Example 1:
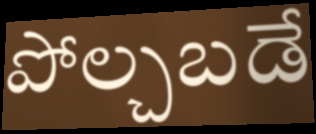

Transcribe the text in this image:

పోల్చబడే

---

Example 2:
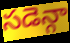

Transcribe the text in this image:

సడెన్గా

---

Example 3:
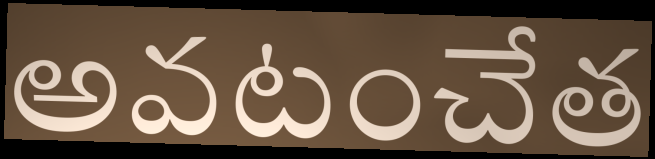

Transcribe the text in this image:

అవటంచేత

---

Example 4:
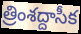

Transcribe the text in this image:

త్రింశద్దాసీక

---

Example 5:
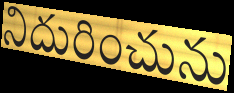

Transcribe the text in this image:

నిదురించును